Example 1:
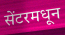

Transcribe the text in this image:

सेंटरमधून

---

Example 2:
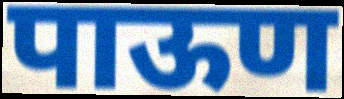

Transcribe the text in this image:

पाऊण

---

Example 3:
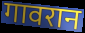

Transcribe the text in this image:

गावरान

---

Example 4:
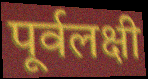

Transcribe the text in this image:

पूर्वलक्षी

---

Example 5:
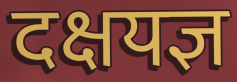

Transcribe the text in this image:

दक्षयज्ञ